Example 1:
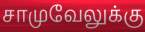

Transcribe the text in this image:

சாமுவேலுக்கு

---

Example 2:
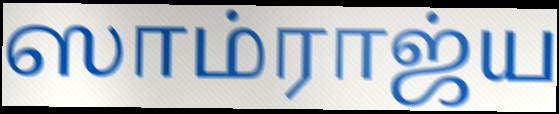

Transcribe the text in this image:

ஸாம்ராஜ்ய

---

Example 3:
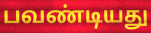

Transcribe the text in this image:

பவண்டியது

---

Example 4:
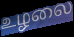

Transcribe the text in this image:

உழலை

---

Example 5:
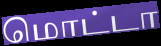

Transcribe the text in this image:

மொட்டா